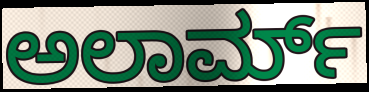
ಅಲಾರ್ಮ್